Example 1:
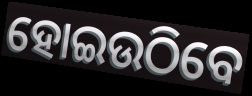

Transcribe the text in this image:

ହୋଇଉଠିବେ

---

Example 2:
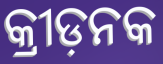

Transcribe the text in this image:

କ୍ରୀଡ଼ନକ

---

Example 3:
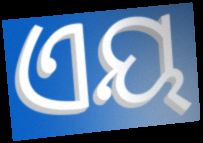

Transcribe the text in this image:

ଏୟ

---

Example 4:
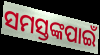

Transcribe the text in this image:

ସମସ୍ତଙ୍କପାଇଁ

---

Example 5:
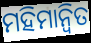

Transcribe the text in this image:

ମହିମାନ୍ୱିତ